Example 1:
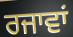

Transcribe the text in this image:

ਰਜਾਵਾਂ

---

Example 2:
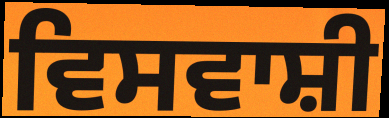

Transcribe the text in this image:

ਵਿਸਵਾਸ਼ੀ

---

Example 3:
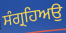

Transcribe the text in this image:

ਸੰਗ੍ਰਹਿਅਉ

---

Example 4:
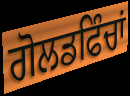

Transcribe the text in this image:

ਗੋਲਡਫਿੰਚਾਂ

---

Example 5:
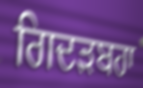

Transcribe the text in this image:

ਗਿਦੜਬਹਾ